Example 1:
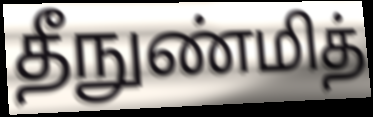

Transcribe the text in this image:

தீநுண்மித்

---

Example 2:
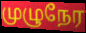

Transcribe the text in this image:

முழுநேர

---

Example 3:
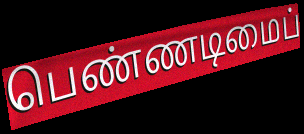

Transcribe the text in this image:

பெண்ணடிமைப்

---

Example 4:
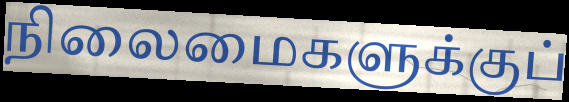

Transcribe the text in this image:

நிலைமைகளுக்குப்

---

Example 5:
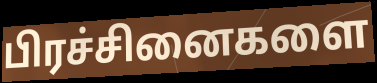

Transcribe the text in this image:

பிரச்சினைகளை